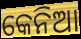
କେନିଆ